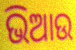
ଭିଆଉ